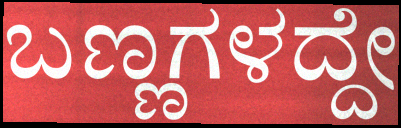
ಬಣ್ಣಗಳದ್ದೇ